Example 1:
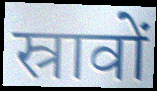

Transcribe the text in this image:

स्रावों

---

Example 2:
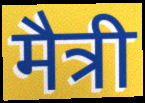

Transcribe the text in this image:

मैत्री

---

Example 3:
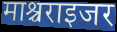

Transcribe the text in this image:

माश्चराइजर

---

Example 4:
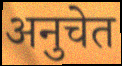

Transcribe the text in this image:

अनुचेत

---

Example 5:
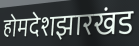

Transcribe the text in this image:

होमदेशझारखंड